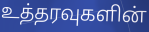
உத்தரவுகளின்